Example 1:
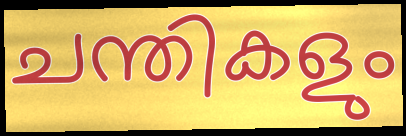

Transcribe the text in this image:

ചന്തികളും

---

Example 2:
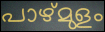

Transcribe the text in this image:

പാഴ്മുളം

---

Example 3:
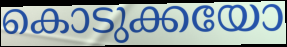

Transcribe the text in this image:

കൊടുക്കയോ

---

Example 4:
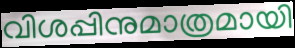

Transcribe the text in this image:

വിശപ്പിനുമാത്രമായി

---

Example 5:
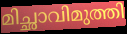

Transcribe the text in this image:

മിച്ഛാവിമുത്തി